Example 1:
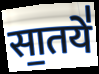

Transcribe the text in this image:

सा॒तये॑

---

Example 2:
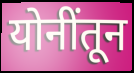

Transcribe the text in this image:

योनींतून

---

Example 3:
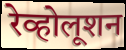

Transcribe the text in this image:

रेव्होलूशन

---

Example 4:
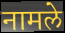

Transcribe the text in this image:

नामले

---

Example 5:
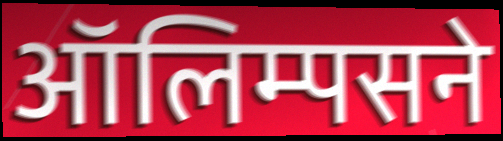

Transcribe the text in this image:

ऑलिम्पसने